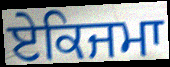
ਏਕਿਜਮਾ